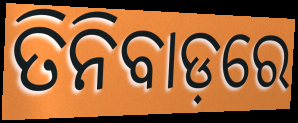
ତିନିବାଡ଼ରେ